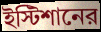
ইস্টিশানের